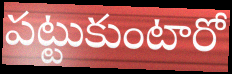
పట్టుకుంటారో